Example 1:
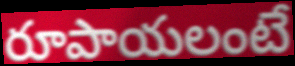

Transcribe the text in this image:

రూపాయలంటే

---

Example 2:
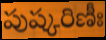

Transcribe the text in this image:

పుష్కరిణీః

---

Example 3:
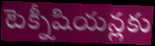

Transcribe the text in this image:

టెక్నీషియన్లకు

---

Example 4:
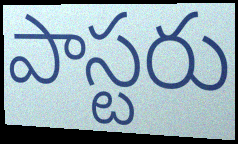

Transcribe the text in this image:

పాస్టరు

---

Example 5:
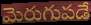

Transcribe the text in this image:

మెరుగుపడే